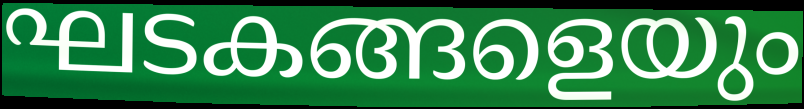
ഘടകങ്ങളെയും